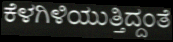
ಕೆಳಗಿಳಿಯುತ್ತಿದ್ದಂತೆ